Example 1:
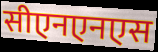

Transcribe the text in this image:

सीएनएनएस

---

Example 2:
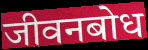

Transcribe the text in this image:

जीवनबोध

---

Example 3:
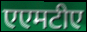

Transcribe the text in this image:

एएमटीए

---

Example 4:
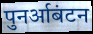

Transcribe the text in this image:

पुनर्आबंटन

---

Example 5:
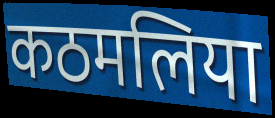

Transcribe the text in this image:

कठमलिया